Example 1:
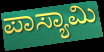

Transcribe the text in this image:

ಪಾಸ್ಯಾಮಿ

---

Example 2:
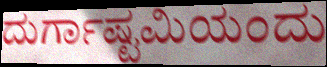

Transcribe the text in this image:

ದುರ್ಗಾಷ್ಟಮಿಯಂದು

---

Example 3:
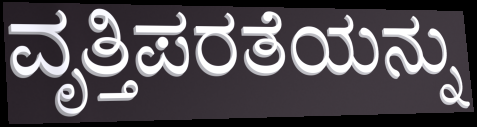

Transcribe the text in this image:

ವೃತ್ತಿಪರತೆಯನ್ನು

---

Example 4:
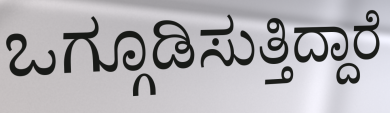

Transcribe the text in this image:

ಒಗ್ಗೂಡಿಸುತ್ತಿದ್ದಾರೆ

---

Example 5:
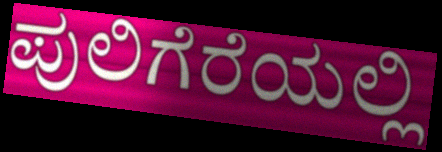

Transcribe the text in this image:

ಪುಲಿಗೆರೆಯಲ್ಲಿ